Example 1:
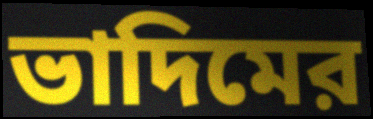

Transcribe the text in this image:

ভাদিমের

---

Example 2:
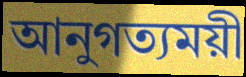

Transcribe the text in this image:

আনুগত্যময়ী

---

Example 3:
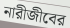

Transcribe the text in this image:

নারীজীবের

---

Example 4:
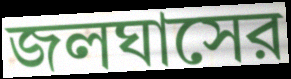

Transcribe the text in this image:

জলঘাসের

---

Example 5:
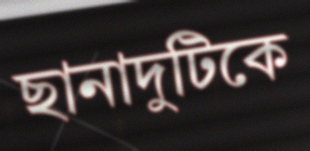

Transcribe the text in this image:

ছানাদুটিকে